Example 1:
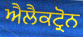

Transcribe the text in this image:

ਐਲੈਕਟ੍ਰੋਨ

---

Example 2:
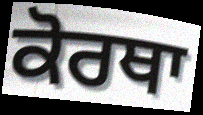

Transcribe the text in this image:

ਕੋਰਥਾ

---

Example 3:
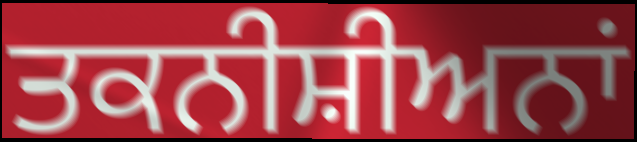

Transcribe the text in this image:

ਤਕਨੀਸ਼ੀਅਨਾਂ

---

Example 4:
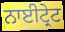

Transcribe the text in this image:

ਨਾਈਟ੍ਰੇਟ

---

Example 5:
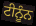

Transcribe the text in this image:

ਟੀਨੂੰਨ